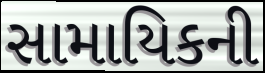
સામાયિકની